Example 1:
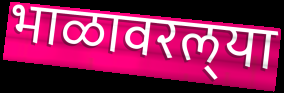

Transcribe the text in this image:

भाळावरल्या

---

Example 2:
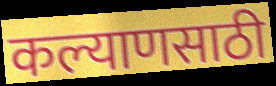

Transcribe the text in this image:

कल्याणसाठी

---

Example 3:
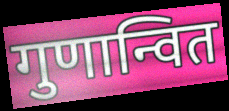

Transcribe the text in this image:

गुणान्वित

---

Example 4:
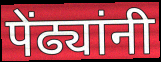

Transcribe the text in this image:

पेंढ्यांनी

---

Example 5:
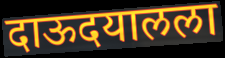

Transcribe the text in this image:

दाऊदयालला